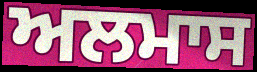
ਅਲਮਾਸ